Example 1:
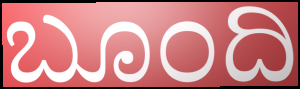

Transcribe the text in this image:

ಬೂಂದಿ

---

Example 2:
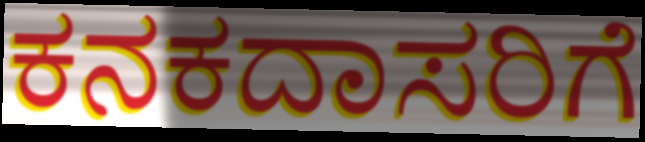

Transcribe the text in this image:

ಕನಕದಾಸರಿಗೆ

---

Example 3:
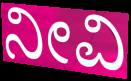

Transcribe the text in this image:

ನೀವಿ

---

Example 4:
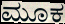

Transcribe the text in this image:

ಮೂಕ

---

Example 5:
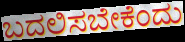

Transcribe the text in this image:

ಬದಲಿಸಬೇಕೆಂದು